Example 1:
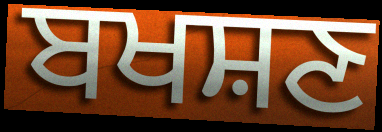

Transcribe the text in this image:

ਬਖਸ਼ਣ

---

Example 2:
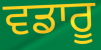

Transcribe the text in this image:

ਵਡਾਰੂ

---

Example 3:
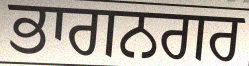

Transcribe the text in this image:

ਭਾਗਨਗਰ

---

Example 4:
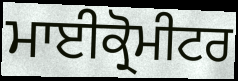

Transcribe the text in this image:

ਮਾਈਕ੍ਰੋਮੀਟਰ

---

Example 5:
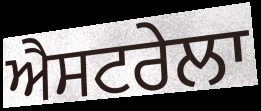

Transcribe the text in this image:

ਐਸਟਰੇਲਾ